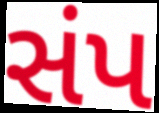
સંપ